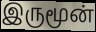
இருமூன்